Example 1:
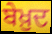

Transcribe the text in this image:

ਬੇਖ਼ੁਦ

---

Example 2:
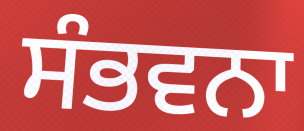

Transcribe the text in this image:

ਸੰਭਵਨਾ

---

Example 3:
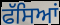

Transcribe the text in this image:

ਫੱਸਿਆਂ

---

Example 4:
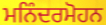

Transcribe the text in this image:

ਮਨਿੰਦਰਮੋਹਨ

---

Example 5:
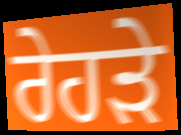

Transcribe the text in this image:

ਰੇਹੜੇ